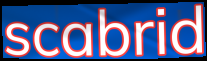
scabrid